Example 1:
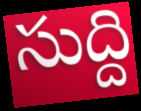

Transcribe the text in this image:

సుద్ది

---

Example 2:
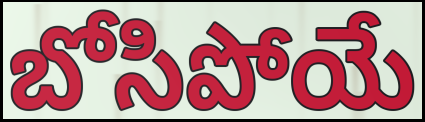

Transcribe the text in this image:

బోసిపోయే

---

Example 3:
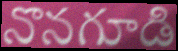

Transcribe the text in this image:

నొనగూడి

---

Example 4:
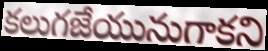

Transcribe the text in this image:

కలుగజేయునుగాకని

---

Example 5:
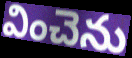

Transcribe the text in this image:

వించెను